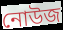
নোউজ